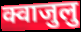
क्वाजुलु